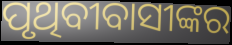
ପୃଥିବୀବାସୀଙ୍କର